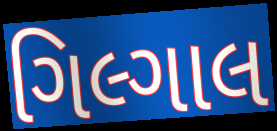
ગિલ્ગાલ